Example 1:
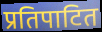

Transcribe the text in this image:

प्रतिपाटित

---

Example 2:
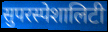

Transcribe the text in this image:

सुपरस्पेशालिटी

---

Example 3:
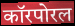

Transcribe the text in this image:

कॉरपोरल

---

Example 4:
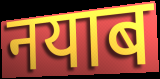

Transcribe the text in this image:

नयाब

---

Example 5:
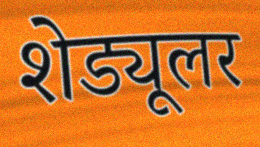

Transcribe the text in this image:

शेड्यूलर